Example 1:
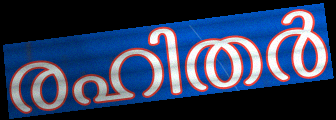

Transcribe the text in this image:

രഹിതർ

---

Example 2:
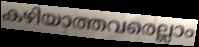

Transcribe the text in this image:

കഴിയാത്തവരെല്ലാം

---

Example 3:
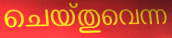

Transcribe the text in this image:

ചെയ്തുവെന്ന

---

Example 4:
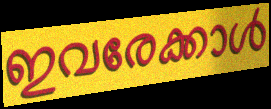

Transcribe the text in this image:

ഇവരേക്കാൾ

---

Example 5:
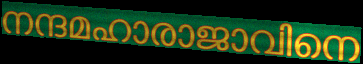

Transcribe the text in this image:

നന്ദമഹാരാജാവിനെ